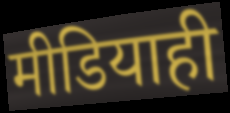
मीडियाही